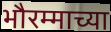
भौरम्माच्या